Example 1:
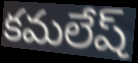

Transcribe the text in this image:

కమలేష్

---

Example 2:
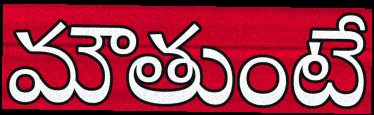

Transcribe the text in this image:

మౌతుంటే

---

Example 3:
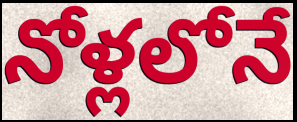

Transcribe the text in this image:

నోళ్లలోనే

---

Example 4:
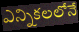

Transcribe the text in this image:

ఎన్నికలలోనే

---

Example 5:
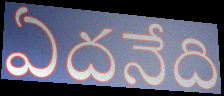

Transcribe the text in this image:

ఏదనేది